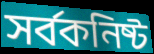
সর্বকনিষ্ট